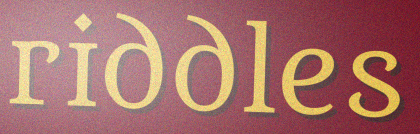
riddles